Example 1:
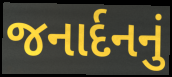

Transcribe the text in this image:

જનાર્દનનું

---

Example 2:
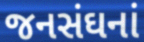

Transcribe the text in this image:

જનસંઘનાં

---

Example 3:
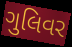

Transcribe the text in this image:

ગુલિવર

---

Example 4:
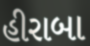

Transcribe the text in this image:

હીરાબા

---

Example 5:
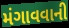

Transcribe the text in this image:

મંગાવવાની